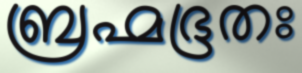
ബ്രഹ്മഭൂതഃ